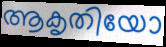
ആകൃതിയോ